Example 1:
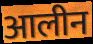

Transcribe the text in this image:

आलीन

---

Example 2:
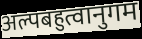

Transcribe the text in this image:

अल्पबहुत्वानुगम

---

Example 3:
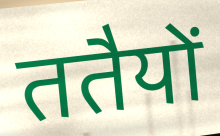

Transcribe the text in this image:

ततैयों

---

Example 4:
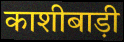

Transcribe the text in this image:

काशीबाड़ी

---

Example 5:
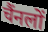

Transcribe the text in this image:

चैंनलों